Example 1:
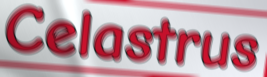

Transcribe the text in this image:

Celastrus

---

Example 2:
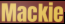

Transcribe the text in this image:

Mackie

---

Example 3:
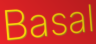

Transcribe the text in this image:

Basal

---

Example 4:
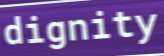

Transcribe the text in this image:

dignity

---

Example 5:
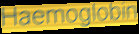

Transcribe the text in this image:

Haemoglobin